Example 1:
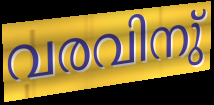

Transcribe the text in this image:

വരവിനു്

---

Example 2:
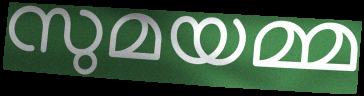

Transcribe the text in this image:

സുമയമ്മ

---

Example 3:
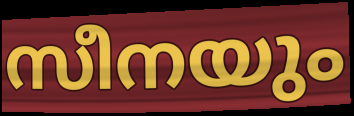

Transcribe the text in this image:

സീനയും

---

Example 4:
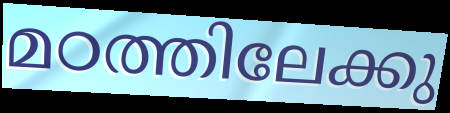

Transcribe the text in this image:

മഠത്തിലേക്കു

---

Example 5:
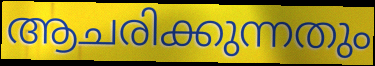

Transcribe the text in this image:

ആചരിക്കുന്നതും